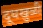
दूधखुळी